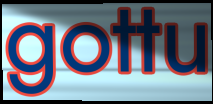
gottu